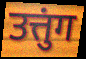
उत्तुंग